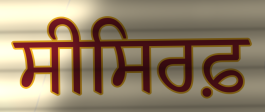
ਸੀਸਿਰਫ਼